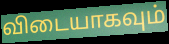
விடையாகவும்